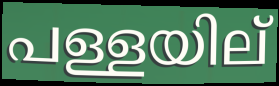
പള്ളയില്